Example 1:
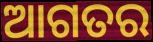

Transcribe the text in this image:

ଆଗତର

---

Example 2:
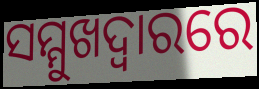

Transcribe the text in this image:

ସମ୍ମୁଖଦ୍ୱାରରେ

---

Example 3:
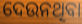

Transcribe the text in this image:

ଦେଉନଥିବା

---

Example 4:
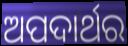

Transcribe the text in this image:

ଅପଦାର୍ଥର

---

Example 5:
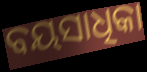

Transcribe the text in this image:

ବୟସାଧିକା